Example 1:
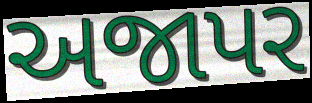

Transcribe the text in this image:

અજાપર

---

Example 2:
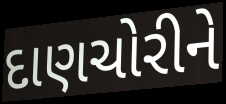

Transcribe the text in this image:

દાણચોરીને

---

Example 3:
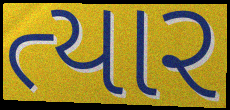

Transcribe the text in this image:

ત્યાર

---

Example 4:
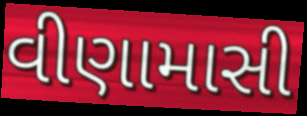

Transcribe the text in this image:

વીણામાસી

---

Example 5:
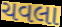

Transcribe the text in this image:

ચવલા